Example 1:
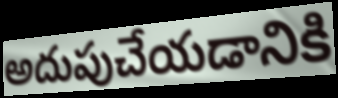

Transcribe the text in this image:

అదుపుచేయడానికి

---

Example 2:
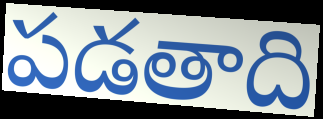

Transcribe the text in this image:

పడతాది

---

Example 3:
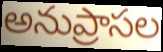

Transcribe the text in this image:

అనుప్రాసల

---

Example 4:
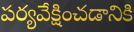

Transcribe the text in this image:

పర్యవేక్షించడానికి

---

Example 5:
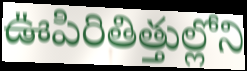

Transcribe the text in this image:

ఊపిరితిత్తుల్లోని